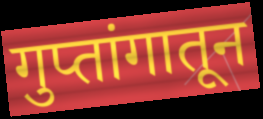
गुप्तांगातून